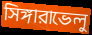
সিঙ্গারাভেলু